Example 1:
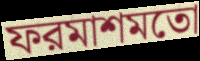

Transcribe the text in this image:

ফরমাশমতো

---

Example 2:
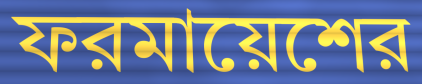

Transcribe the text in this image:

ফরমায়েশের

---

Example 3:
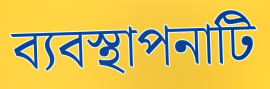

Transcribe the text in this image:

ব্যবস্থাপনাটি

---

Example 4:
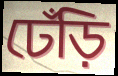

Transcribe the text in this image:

ঢেঁড়ি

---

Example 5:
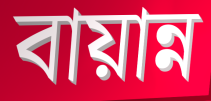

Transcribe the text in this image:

বায়ান্ন